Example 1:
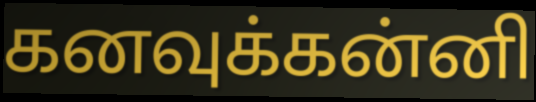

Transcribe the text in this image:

கனவுக்கன்னி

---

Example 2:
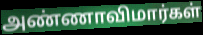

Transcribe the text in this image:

அண்ணாவிமார்கள்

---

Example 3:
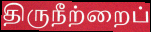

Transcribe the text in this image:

திருநீற்றைப்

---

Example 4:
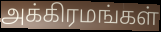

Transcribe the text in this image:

அக்கிரமங்கள்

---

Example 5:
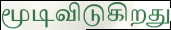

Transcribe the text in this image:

மூடிவிடுகிறது